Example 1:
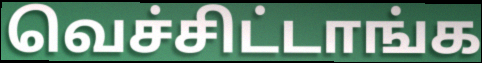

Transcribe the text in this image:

வெச்சிட்டாங்க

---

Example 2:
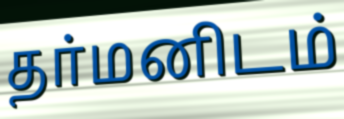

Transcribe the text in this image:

தர்மனிடம்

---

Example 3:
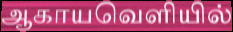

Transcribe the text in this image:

ஆகாயவெளியில்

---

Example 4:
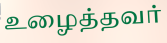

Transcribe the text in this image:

உழைத்தவர்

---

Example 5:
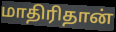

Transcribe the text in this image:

மாதிரிதான்